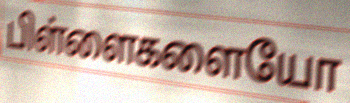
பிள்ளைகளையோ